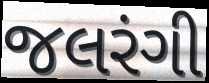
જલરંગી